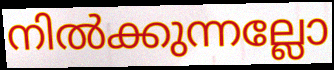
നിൽക്കുന്നല്ലോ